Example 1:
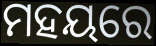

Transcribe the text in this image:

ମହୟରେ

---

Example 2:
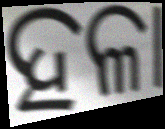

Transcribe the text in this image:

ହଳା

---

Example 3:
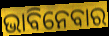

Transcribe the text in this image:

ଭାବିନେବାର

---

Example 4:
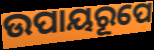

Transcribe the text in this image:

ଉପାୟରୂପେ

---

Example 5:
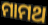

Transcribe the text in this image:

ମାମଥ